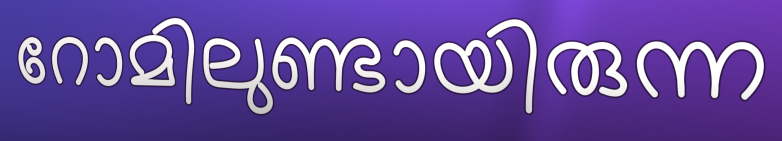
റോമിലുണ്ടായിരുന്ന